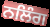
ਨਲਿੰਗ